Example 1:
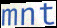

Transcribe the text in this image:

mnt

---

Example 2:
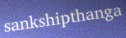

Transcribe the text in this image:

sankshipthanga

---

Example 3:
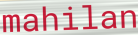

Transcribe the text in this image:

mahilan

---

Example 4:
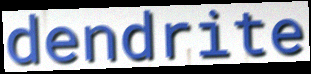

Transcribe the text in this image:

dendrite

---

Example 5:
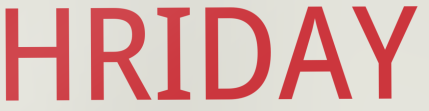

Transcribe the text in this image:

HRIDAY